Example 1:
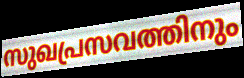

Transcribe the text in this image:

സുഖപ്രസവത്തിനും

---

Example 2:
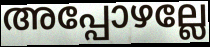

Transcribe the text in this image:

അപ്പോഴല്ലേ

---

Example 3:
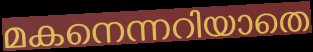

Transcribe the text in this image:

മകനെന്നറിയാതെ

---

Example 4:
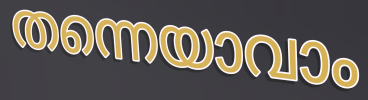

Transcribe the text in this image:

തന്നെയാവാം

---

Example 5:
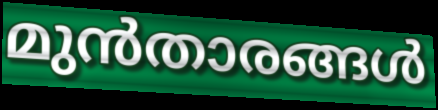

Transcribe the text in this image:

മുൻതാരങ്ങൾ